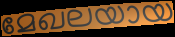
മേഖലയായ